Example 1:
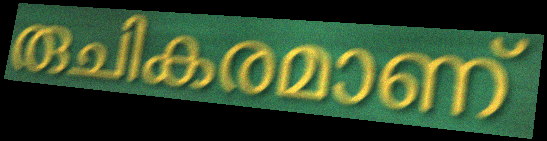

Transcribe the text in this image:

രുചികരമാണ്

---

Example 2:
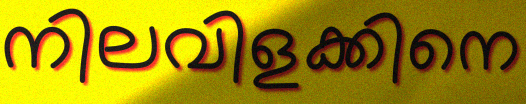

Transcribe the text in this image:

നിലവിളക്കിനെ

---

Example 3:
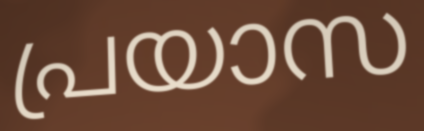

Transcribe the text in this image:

പ്രയാസ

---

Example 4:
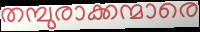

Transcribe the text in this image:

തമ്പുരാക്കന്മാരെ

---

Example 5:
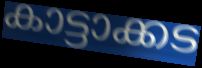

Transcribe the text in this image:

കാട്ടാക്കട